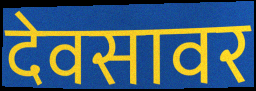
देवसावर